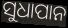
ସୁଧାପାନ